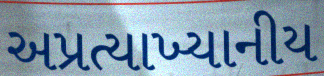
અપ્રત્યાખ્યાનીય